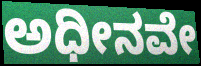
ಅಧೀನವೇ